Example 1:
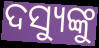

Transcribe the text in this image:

ଦସ୍ୟୁଙ୍କୁ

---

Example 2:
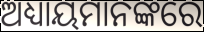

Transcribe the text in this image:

ଅଧ୍ୟାୟମାନଙ୍କରେ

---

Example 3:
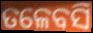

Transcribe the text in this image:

ତଳେବସି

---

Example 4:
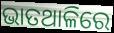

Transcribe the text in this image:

ଭାତଥାଳିରେ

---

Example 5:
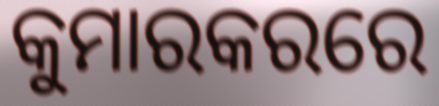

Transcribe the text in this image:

କୁମାରକରରେ